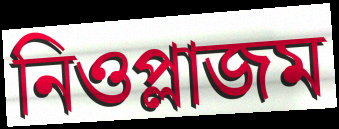
নিওপ্লাজম